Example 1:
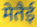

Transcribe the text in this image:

मेतैई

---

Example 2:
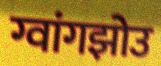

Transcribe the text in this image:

ग्वांगझोउ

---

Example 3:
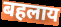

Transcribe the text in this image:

बहलाय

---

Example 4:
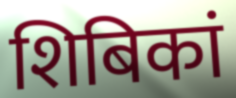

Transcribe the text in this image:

शिबिकां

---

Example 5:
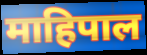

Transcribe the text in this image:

माहिपाल